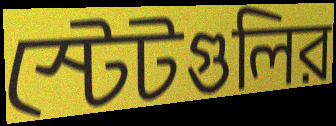
স্টেটগুলির